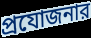
প্রযোজনার